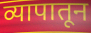
व्यापातून